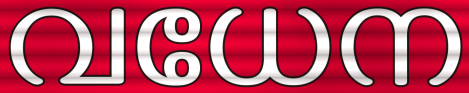
വധേന